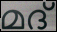
മദ്